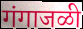
गंगाजळी